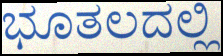
ಭೂತಲದಲ್ಲಿ